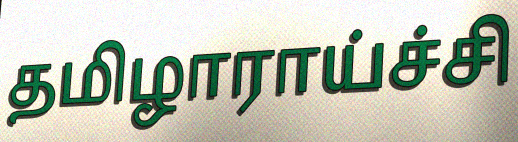
தமிழாராய்ச்சி